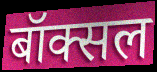
बॉक्सल